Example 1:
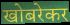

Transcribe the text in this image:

खोबरेकर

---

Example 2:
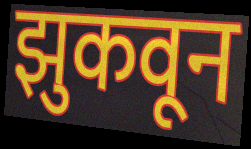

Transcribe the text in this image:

झुकवून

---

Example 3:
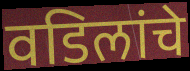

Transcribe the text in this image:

वडिलांचे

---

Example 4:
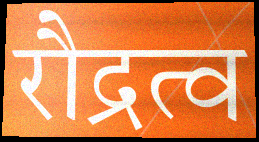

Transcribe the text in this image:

रौद्रत्व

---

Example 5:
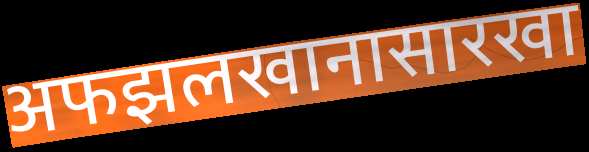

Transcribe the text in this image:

अफझलखानासारखा